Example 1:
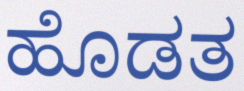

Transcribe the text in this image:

ಹೊಡತ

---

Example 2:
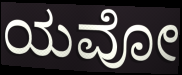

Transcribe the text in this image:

ಯವೋ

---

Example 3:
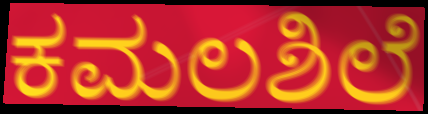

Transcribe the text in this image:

ಕಮಲಶಿಲೆ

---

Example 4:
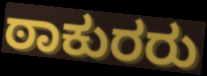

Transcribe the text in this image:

ಠಾಕುರರು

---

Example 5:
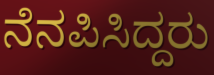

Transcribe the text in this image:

ನೆನಪಿಸಿದ್ದರು